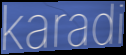
karadi